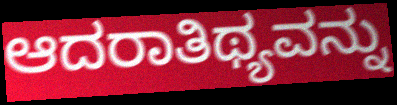
ಆದರಾತಿಥ್ಯವನ್ನು